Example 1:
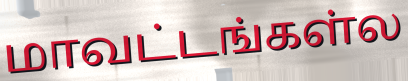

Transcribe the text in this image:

மாவட்டங்கள்ல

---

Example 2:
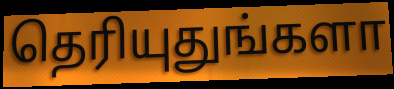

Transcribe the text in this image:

தெரியுதுங்களா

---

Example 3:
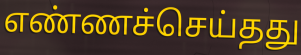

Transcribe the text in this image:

எண்ணச்செய்தது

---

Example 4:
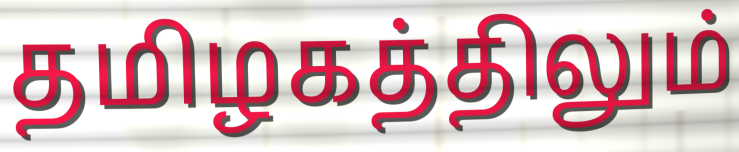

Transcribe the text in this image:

தமிழகத்திலும்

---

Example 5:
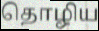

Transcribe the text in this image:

தொழிய